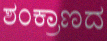
ಶಂಕ್ರಾಣದ